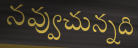
నవ్వుచున్నది